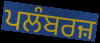
ਪਲੰਬਰਜ਼